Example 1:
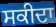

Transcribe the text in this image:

ਸਕੀਦਾ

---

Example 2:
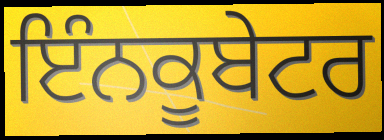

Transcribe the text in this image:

ਇੰਨਕੂਬੇਟਰ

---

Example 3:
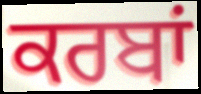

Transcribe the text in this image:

ਕਰਬਾਂ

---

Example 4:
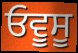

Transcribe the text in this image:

ਓਵੂਸੂ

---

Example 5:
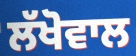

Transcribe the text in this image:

ਲੱਖੋਵਾਲ